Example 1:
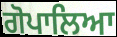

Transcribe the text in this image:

ਗੋਪਾਲਿਆ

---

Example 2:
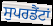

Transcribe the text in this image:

ਸੁਪਰਡੈਂਟਾਂ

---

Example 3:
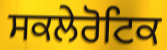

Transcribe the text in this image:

ਸਕਲੇਰੋਟਿਕ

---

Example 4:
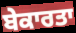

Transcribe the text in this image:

ਬੇਕਾਰਤਾ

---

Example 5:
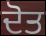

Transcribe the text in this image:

ਦੋਤ